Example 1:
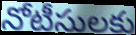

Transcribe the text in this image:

నోటీసులకు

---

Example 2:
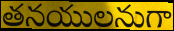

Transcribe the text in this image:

తనయులనుగా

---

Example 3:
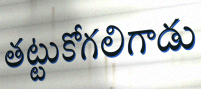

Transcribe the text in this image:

తట్టుకోగలిగాడు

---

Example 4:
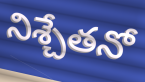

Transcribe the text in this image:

నిశ్చేతనో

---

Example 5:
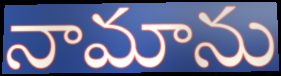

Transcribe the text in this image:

నామాను